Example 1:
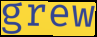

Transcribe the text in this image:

grew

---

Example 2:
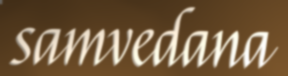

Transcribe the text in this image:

samvedana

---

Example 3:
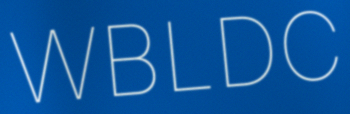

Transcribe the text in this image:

WBLDC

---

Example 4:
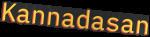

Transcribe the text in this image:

Kannadasan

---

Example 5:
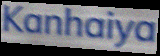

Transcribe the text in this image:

Kanhaiya